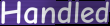
Handled